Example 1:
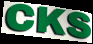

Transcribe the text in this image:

CKS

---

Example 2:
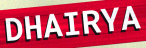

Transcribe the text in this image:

DHAIRYA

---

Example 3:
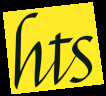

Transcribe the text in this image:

hts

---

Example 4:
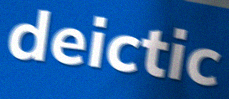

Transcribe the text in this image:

deictic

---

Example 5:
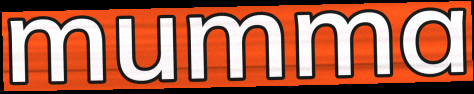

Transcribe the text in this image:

mumma